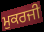
ਮੁਕਰਜੀ